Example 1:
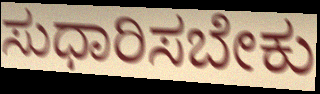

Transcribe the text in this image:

ಸುಧಾರಿಸಬೇಕು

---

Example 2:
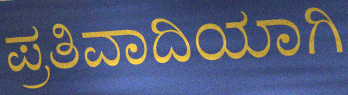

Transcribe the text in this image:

ಪ್ರತಿವಾದಿಯಾಗಿ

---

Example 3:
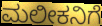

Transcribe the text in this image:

ಮಲೀಕನಿಗೆ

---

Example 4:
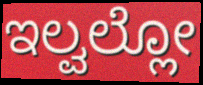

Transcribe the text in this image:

ಇಲ್ವಲ್ಲೋ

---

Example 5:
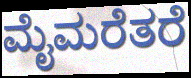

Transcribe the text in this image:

ಮೈಮರೆತರೆ